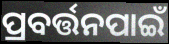
ପ୍ରବର୍ତ୍ତନପାଇଁ